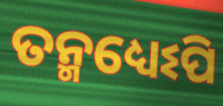
ତନ୍ମଧ୍ୟେଽପି